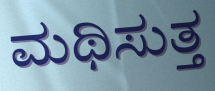
ಮಥಿಸುತ್ತ